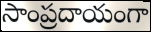
సాంప్రదాయంగా